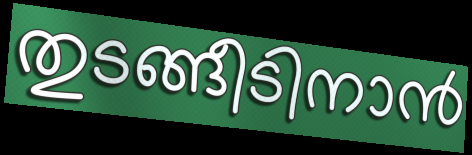
തുടങ്ങീടിനാൻ